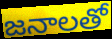
జనాలతో